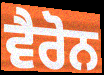
ਵੈਰੋਨ